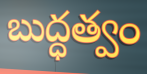
బుద్ధత్వం